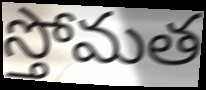
స్తోమత